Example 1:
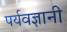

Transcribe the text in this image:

पर्यवज्ञानी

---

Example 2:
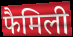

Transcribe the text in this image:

फैमिली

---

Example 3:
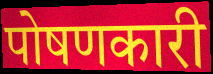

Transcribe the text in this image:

पोषणकारी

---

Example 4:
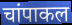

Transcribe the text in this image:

चांपाकल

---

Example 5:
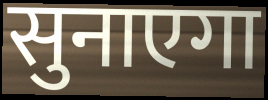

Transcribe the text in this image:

सुनाएगा